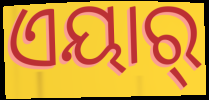
ଏୟାର୍